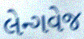
લેન્ગવેજ